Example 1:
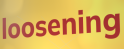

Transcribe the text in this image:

loosening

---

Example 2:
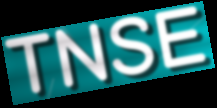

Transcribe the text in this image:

TNSE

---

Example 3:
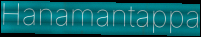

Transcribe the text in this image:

Hanamantappa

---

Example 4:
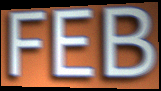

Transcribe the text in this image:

FEB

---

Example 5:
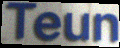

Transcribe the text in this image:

Teun